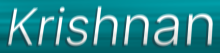
Krishnan